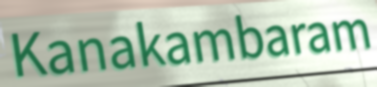
Kanakambaram